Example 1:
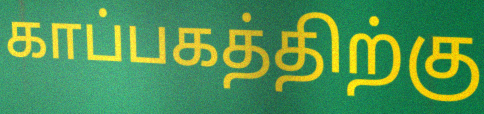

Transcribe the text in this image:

காப்பகத்திற்கு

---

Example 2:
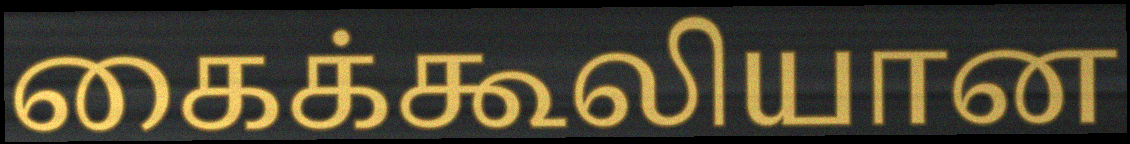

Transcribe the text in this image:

கைக்கூலியான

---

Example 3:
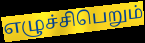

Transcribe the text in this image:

எழுச்சிபெறும்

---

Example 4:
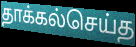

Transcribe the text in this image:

தாக்கல்செய்த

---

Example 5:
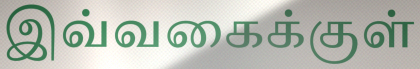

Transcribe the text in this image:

இவ்வகைக்குள்